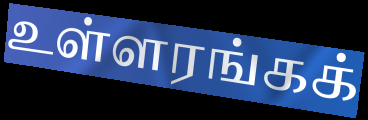
உள்ளரங்கக்